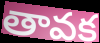
తావక